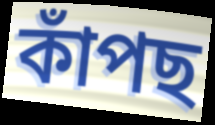
কাঁপছ